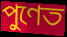
পুণেত